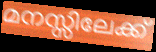
മനസ്സിലേക്ക്